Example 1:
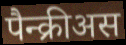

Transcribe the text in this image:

पैन्क्रीअस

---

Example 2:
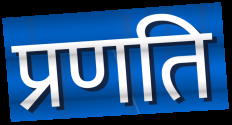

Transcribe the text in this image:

प्रणति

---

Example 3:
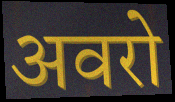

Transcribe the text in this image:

अवरो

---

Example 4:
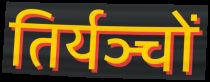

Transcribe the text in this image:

तिर्यञ्चों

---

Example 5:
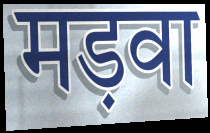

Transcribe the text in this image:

मड़वा